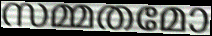
സമ്മതമോ